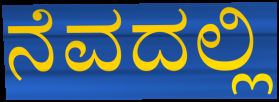
ನೆವದಲ್ಲಿ